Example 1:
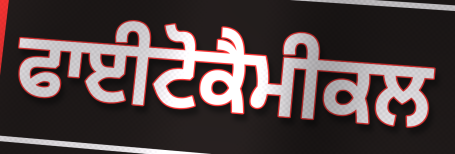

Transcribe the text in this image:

ਫਾਈਟੋਕੈਮੀਕਲ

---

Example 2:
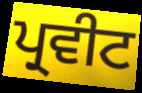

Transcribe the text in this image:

ਪ੍ਰਵੀਟ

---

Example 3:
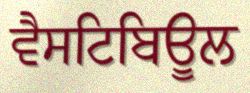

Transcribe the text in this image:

ਵੈਸਟਿਬਿਊਲ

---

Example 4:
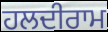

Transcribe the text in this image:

ਹਲਦੀਰਾਮ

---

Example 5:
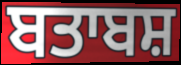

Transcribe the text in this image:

ਬਤਾਬਸ਼